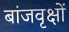
बांजवृक्षों